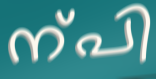
ന്പി